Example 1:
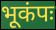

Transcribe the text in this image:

भूकंपः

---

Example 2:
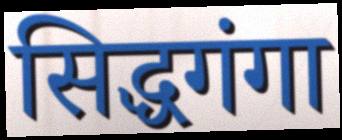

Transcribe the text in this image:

सिद्धगंगा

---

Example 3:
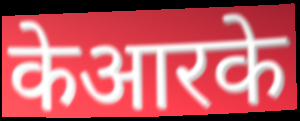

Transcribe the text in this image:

केआरके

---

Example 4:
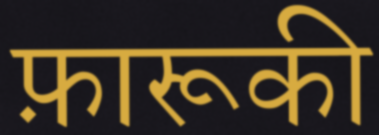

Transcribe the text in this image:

फ़ारूकी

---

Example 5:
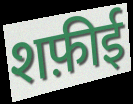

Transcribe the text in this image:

शफ़ीई